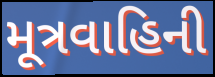
મૂત્રવાહિની